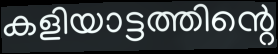
കളിയാട്ടത്തിന്റെ